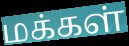
மக்கள்